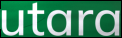
utara